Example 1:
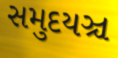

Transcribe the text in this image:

સમુદયઞ્ચ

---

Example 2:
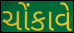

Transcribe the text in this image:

ચોંકાવે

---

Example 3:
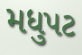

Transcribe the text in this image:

મધુપટ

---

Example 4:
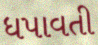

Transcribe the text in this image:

ધપાવતી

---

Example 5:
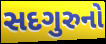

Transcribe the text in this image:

સદગુરુનો